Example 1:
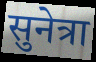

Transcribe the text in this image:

सुनेत्रा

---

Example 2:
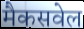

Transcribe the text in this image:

मैकसवेल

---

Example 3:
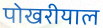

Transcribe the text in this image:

पोखरीयाल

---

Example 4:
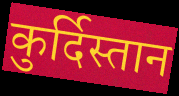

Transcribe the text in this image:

कुर्दिस्तान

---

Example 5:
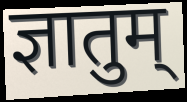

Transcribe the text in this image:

ज्ञातुम्